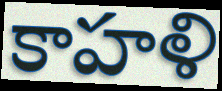
కాహళి